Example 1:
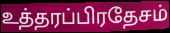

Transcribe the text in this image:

உத்தரப்பிரதேசம்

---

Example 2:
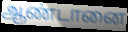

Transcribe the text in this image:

ஆண்டானை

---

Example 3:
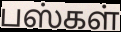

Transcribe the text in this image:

பஸ்கள்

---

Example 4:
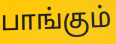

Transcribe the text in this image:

பாங்கும்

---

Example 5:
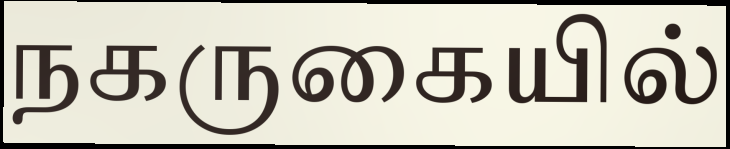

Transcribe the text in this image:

நகருகையில்